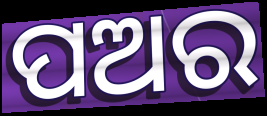
ପଅର